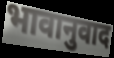
भावानुवाद